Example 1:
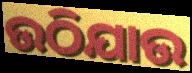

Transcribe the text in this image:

ଉଠିଯାଉ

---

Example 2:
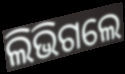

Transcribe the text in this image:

ଲିଭିଗଲେ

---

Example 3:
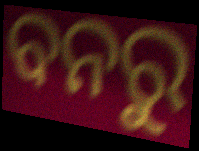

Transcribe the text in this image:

ବନରୁ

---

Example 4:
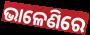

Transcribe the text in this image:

ଭାଳେଣିରେ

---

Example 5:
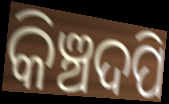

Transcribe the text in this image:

କିଞ୍ଚଦପି